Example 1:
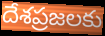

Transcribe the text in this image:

దేశప్రజలకు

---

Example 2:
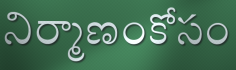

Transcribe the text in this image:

నిర్మాణంకోసం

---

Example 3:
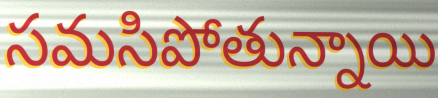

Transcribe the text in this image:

సమసిపోతున్నాయి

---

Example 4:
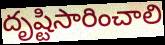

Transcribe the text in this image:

దృష్టిసారించాలి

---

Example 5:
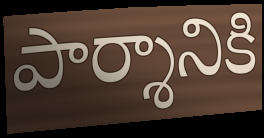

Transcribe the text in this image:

పార్శానికి